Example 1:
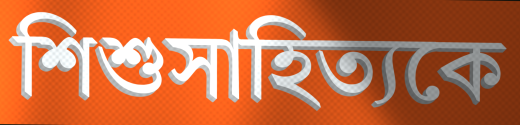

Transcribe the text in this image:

শিশুসাহিত্যকে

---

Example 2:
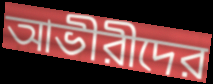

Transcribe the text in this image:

আভীরীদের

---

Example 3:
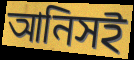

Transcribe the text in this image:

আনিসই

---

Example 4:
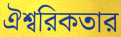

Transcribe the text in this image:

ঐশ্বরিকতার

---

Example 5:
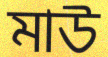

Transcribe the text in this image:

মাউ